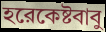
হরেকেষ্টবাবু